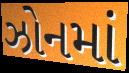
ઝોનમાં